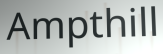
Ampthill